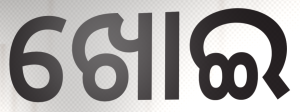
ଖୋଇ